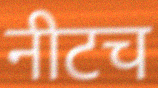
नीटच